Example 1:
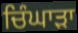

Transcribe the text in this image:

ਚਿੰਘਾੜਾ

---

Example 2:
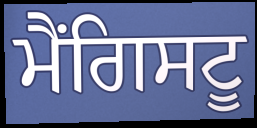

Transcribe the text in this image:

ਮੈਂਗਿਸਟੂ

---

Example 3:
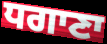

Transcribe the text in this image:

ਧਗਾਣਾ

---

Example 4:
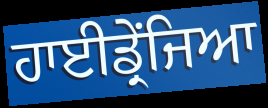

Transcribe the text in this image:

ਹਾਈਡ੍ਰੇਂਜਿਆ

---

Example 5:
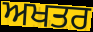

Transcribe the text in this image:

ਅਖਤਰ